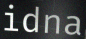
idna